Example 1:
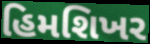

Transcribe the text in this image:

હિમશિખર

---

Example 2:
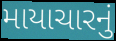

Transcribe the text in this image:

માયાચારનું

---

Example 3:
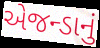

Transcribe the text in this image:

એજન્ડાનું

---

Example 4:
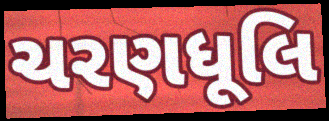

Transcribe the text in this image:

ચરણધૂલિ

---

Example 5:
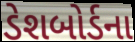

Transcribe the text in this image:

ડેશબોર્ડના